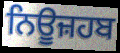
ਨਿਊਜ਼ਹਬ